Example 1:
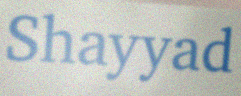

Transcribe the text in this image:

Shayyad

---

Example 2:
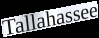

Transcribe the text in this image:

Tallahassee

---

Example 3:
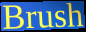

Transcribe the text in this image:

Brush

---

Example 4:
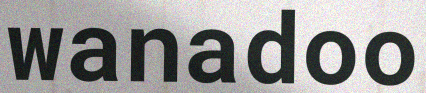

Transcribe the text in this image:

wanadoo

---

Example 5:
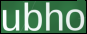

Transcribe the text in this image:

ubho